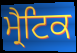
ਮ੍ਰੈਟਿਕ